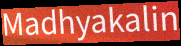
Madhyakalin